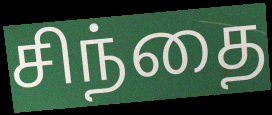
சிந்தை